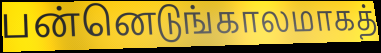
பன்னெடுங்காலமாகத்